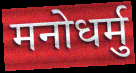
मनोधर्मु